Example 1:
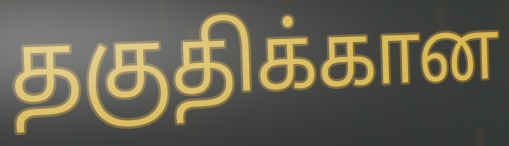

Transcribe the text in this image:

தகுதிக்கான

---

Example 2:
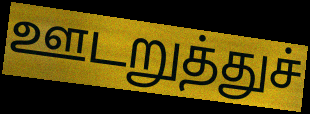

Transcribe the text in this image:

ஊடறுத்துச்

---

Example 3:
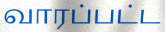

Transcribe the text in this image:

வாரப்பட்ட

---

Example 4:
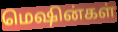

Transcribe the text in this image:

மெஷின்கள்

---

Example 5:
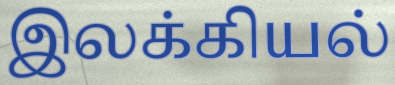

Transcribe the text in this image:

இலக்கியல்